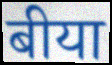
बीया